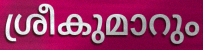
ശ്രീകുമാറും